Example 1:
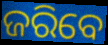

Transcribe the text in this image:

ଜରିବେ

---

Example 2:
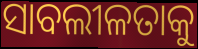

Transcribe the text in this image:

ସାବଲୀଳତାକୁ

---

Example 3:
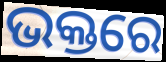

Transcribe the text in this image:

ଭକ୍ତରେ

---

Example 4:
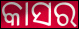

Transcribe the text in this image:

କାସର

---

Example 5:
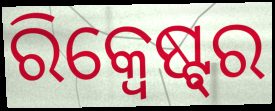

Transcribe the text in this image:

ରିକ୍ୱେଷ୍ଟ୍‌ର